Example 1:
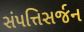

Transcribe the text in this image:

સંપત્તિસર્જન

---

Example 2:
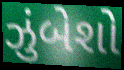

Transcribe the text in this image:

ઝુંબેશો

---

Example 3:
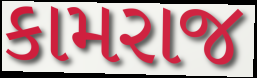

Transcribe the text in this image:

કામરાજ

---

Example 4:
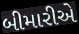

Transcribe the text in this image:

બીમારીએ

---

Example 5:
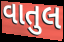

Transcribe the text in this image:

વાતુલ